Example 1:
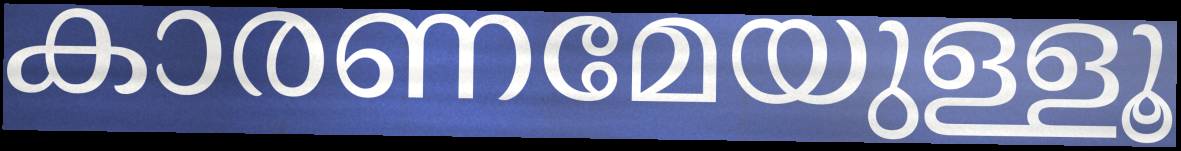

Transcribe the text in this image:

കാരണമേയുള്ളൂ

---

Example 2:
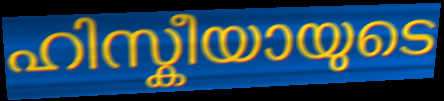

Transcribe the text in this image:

ഹിസ്കീയായുടെ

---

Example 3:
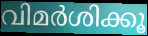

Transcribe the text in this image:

വിമർശിക്കൂ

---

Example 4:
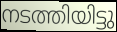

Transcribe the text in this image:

നടത്തിയിട്ടു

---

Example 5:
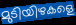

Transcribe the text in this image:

മുടിയിഴകളെ